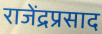
राजेंद्रप्रसाद